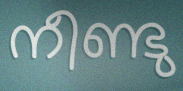
നീണ്ടു